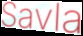
Savla